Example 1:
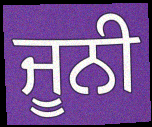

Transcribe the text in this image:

ਜੂਨੀ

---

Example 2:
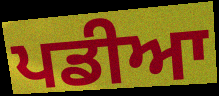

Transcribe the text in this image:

ਪਡੀਆ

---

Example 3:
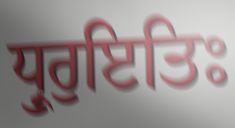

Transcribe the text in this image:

ਧ੍ਰੁਰੁਇਤਿਃ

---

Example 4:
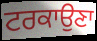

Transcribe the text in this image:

ਟਰਕਾਉਣਾ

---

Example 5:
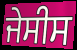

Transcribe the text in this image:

ਜੇਸੀਸ